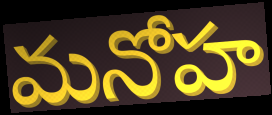
మనోహ